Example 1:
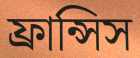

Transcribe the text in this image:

ফ্রান্সিস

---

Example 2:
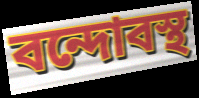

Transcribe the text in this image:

বন্দোবস্থ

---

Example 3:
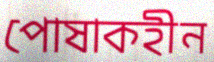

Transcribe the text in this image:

পোষাকহীন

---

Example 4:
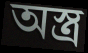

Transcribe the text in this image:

অস্ত্র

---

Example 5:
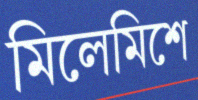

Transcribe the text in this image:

মিলেমিশে